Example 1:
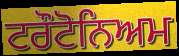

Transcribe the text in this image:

ਟਰੌਟੋਨਿਅਮ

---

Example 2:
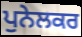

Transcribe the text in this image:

ਪੁਨੇਲਕਰ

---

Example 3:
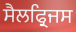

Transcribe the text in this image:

ਸੈਲਫ੍ਰਿਜਸ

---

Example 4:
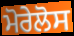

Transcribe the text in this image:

ਮੋਰੇਲੋਸ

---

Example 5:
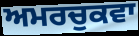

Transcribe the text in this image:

ਅਮਰਚੁਕਵਾ